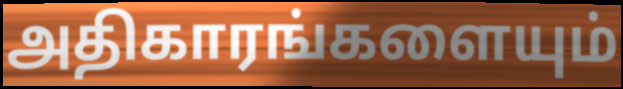
அதிகாரங்களையும்